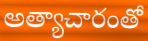
అత్యాచారంతో